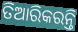
ତିଆରିକରନ୍ତି